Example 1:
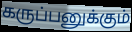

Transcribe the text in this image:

கருப்பனுக்கும்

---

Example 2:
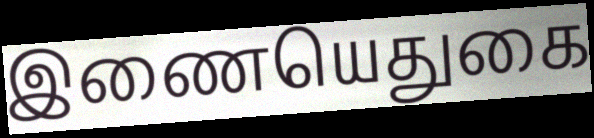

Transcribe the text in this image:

இணையெதுகை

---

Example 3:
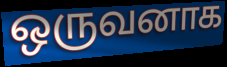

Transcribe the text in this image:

ஒருவனாக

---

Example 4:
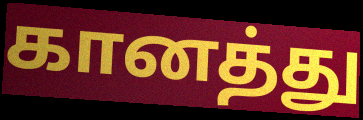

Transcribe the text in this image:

கானத்து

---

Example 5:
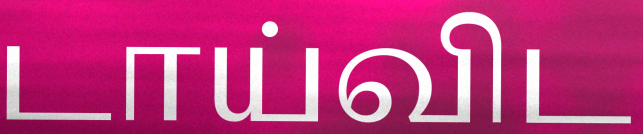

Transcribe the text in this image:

டாய்விட